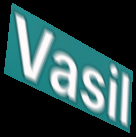
Vasil